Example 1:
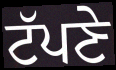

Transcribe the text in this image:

ਟੱਪਣੇ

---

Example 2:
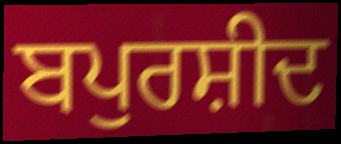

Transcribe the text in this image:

ਬਪੁਰਸ਼ੀਦ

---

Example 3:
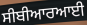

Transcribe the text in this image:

ਸੀਬੀਆਰਆਈ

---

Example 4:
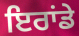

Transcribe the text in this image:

ਇਰਾਂਡੇ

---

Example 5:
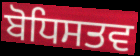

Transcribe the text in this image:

ਬੋਧਿਸਤਵ